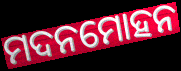
ମଦନମୋହନ